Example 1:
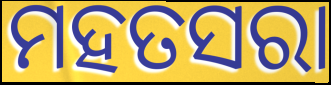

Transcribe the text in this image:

ମହତସରା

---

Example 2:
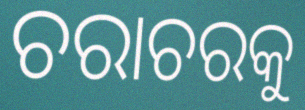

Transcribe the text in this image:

ଚରାଚରକୁ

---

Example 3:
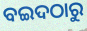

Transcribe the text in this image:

ବଇଦଠାରୁ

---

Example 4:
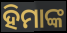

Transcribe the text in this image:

ହିମାଙ୍କ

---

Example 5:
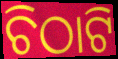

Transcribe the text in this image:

ଚିଠାଟି